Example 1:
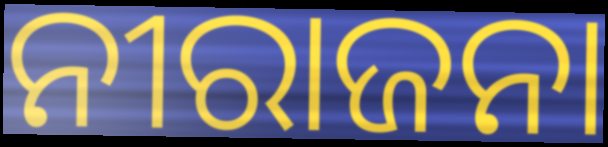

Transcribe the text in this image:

ନୀରାଜନା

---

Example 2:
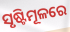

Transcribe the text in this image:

ସୃଷ୍ଟିମୂଳରେ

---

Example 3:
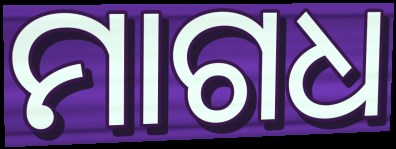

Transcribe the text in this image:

ମାଗଧ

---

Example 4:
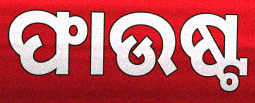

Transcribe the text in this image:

ଫାଉଷ୍ଟ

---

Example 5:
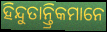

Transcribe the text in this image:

ହିନ୍ଦୁତାନ୍ତ୍ରିକମାନେ